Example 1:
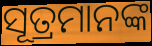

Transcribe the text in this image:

ସୂତ୍ରମାନଙ୍କ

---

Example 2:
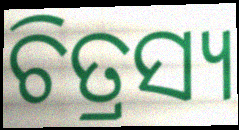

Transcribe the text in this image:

ଚିତ୍ରସ୍ୟ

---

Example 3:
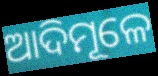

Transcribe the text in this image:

ଆଦିମୂଳେ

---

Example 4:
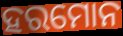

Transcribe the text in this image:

ହରମୋନ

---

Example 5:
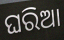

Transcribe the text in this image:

ଘରିଆ